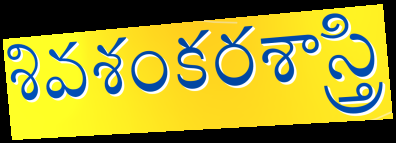
శివశంకరశాస్త్రి